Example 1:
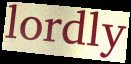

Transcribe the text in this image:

lordly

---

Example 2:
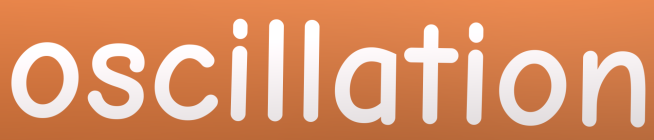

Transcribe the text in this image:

oscillation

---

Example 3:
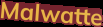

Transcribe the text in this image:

Malwatte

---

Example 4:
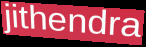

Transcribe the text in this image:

jithendra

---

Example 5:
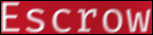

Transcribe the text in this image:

Escrow